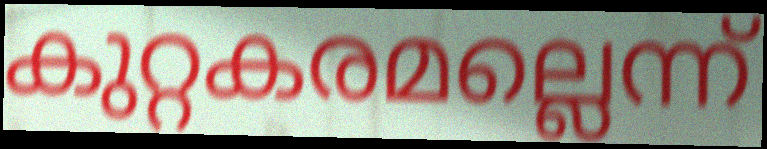
കുറ്റകരമല്ലെന്ന്